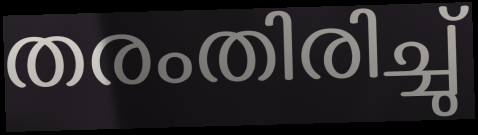
തരംതിരിച്ചു്